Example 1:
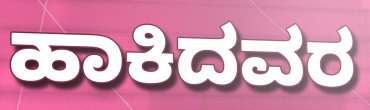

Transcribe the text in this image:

ಹಾಕಿದವರ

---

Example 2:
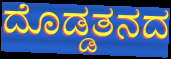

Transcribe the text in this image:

ದೊಡ್ಡತನದ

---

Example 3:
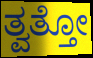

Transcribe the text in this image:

ತ್ವತ್ತೋ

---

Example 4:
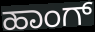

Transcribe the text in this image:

ಹಾಂಗ್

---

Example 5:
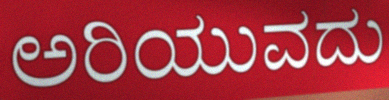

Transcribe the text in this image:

ಅರಿಯುವದು